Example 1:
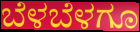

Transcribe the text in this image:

ಬೆಳಬೆಳಗೂ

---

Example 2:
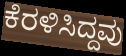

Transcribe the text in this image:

ಕೆರಳಿಸಿದ್ದವು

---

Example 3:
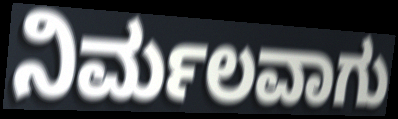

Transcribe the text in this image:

ನಿರ್ಮಲವಾಗು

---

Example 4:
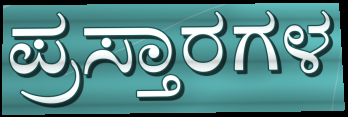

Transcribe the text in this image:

ಪ್ರಸ್ತಾರಗಳ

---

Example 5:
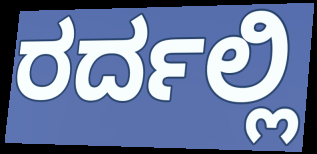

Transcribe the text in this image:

ರರ್ದಲ್ಲಿ